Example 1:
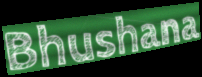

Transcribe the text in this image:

Bhushana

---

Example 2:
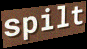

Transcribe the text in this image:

spilt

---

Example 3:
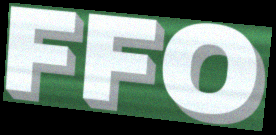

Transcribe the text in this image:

FFO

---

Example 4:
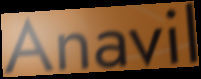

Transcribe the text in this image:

Anavil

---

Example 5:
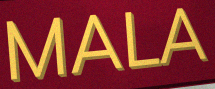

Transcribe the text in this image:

MALA